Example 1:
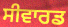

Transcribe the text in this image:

ਸੀਵਾਰਡ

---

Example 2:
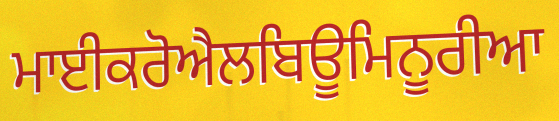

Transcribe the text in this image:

ਮਾਈਕਰੋਐਲਬਿਊਮਿਨੂਰੀਆ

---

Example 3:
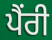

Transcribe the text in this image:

ਪੈਂਰੀ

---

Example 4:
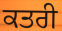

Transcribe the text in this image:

ਕਤਰੀ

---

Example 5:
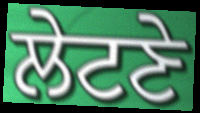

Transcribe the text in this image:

ਲੇਟਣੇ